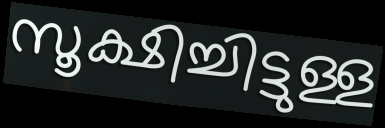
സൂക്ഷിച്ചിട്ടുള്ള